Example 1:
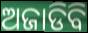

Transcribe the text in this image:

ଅଜାଡିବି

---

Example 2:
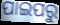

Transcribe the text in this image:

ପାଇପରୁ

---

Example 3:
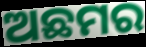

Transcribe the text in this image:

ଅଛମର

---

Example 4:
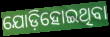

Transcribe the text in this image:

ଯୋଡ଼ିହୋଇଥିବା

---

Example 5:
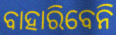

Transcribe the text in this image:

ବାହାରିବେନି